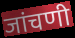
जांचणी